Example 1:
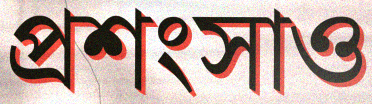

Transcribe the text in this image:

প্রশংসাও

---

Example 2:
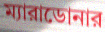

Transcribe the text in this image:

ম্যারাডোনার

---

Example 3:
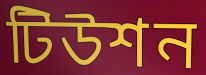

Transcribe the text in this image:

টিউশন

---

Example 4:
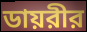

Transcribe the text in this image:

ডায়রীর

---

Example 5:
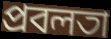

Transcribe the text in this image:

প্রবলতা